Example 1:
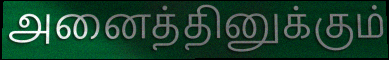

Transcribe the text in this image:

அனைத்தினுக்கும்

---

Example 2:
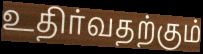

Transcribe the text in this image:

உதிர்வதற்கும்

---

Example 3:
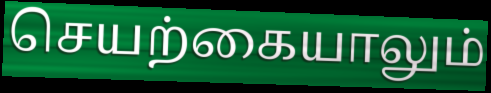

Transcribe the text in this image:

செயற்கையாலும்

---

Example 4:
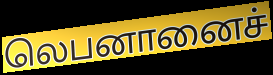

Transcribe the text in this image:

லெபனானைச்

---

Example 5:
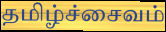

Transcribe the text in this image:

தமிழ்ச்சைவம்